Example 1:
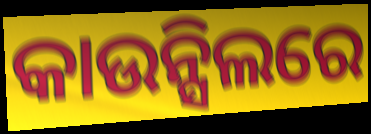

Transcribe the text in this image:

କାଉନ୍ସିଲରେ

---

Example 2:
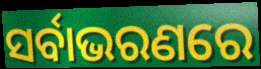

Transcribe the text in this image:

ସର୍ବାଭରଣରେ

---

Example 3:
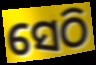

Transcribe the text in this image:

ସେଠି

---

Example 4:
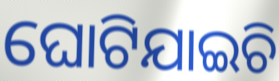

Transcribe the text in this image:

ଘୋଟିଯାଇଚି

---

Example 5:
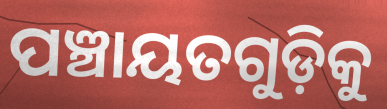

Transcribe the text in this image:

ପଞ୍ଚାୟତଗୁଡ଼ିକୁ